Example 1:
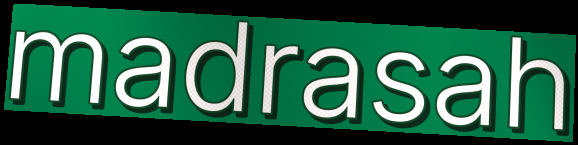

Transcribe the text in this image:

madrasah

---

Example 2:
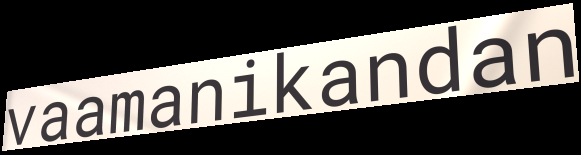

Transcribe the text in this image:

vaamanikandan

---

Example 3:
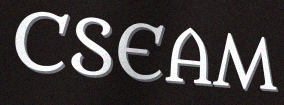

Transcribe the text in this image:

CSEAM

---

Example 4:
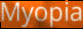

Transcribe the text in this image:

Myopia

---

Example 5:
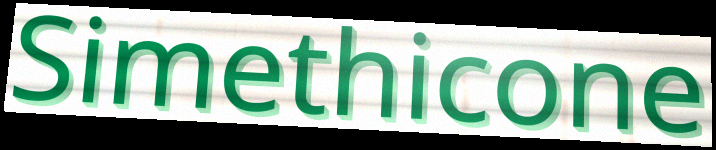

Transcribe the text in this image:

Simethicone